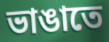
ভাঙাতে